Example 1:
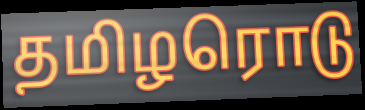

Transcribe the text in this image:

தமிழரொடு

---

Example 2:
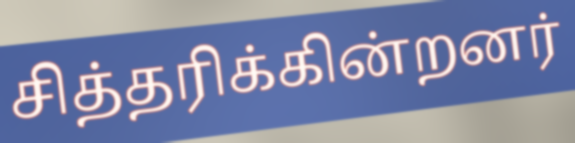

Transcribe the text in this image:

சித்தரிக்கின்றனர்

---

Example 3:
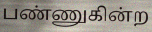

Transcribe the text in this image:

பண்ணுகின்ற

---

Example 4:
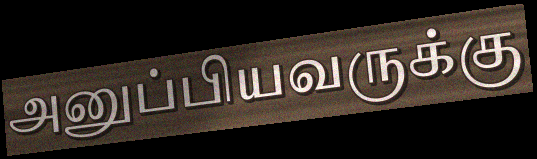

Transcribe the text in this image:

அனுப்பியவருக்கு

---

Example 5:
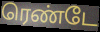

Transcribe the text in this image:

ரெண்டே